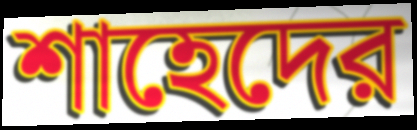
শাহেদের